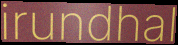
irundhal